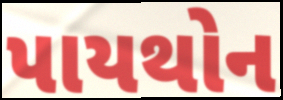
પાયથોન